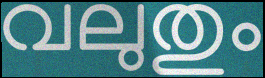
വലുതും